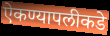
ऐकण्यापलीकडे